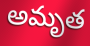
అమృత